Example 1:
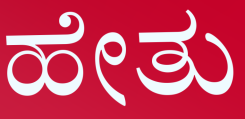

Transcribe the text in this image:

ಹೇತು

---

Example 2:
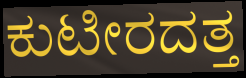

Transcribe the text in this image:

ಕುಟೀರದತ್ತ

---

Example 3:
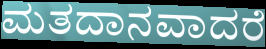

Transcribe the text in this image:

ಮತದಾನವಾದರೆ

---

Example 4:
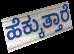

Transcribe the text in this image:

ಹೆಕ್ಕುತ್ತಾರೆ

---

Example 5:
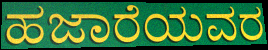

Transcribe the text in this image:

ಹಜಾರೆಯವರ